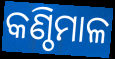
କଣ୍ଠିମାଳ